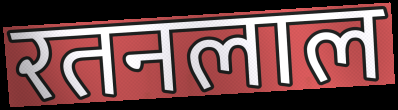
रतनलाल